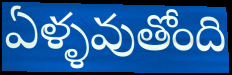
ఏళ్ళవుతోంది